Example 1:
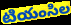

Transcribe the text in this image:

టియంసిల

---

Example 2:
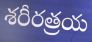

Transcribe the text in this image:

శరీరత్రయ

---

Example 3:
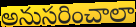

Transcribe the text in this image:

అనుసరించాలా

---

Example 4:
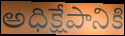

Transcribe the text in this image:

అధిక్షేపానికి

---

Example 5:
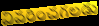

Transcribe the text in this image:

వివరించగలడు